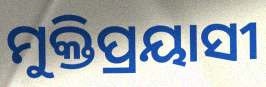
ମୁକ୍ତିପ୍ରୟାସୀ